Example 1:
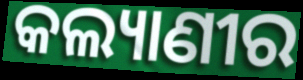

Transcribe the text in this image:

କଲ୍ୟାଣୀର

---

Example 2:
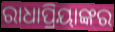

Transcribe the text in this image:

ରାଧାପ୍ରିୟାଙ୍କର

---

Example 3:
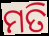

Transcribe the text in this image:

ମତି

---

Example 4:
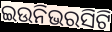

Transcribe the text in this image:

ଇଉନିଭରସିଟି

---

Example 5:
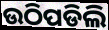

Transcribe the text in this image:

ଉଠିପଡିଲି